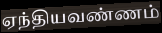
ஏந்தியவண்ணம்